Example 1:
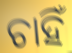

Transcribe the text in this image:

ଚାହିଁ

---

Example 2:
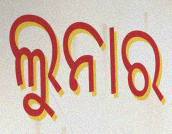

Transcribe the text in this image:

ଲୁନାର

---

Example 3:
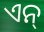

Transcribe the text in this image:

ଏନ୍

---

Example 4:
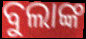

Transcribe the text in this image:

ବୁଲାଙ୍କ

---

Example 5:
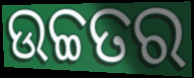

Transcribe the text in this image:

ଉଚ୍ଚତର